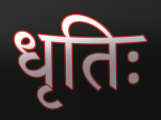
धृतिः